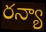
రన్యా